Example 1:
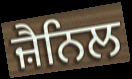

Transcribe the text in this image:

ਜ਼ੈਨਿਲ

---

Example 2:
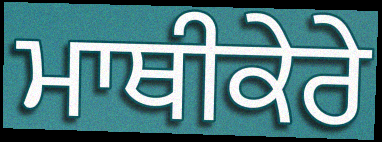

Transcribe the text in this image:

ਮਾਥੀਕੇਰੇ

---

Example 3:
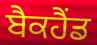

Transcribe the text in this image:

ਬੈਕਹੈਂਡ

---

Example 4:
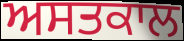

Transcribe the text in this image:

ਅਸਤਕਾਲ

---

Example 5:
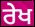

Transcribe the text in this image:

ਰੇਖ